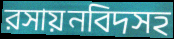
রসায়নবিদসহ